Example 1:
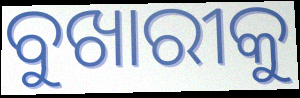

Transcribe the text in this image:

ବୁଖାରୀକୁ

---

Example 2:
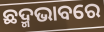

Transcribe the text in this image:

ଛଦ୍ମଭାବରେ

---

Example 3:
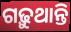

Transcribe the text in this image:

ଗଢ଼ୁଥାନ୍ତି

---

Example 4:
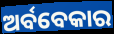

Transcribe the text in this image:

ଅର୍ବବେକାର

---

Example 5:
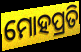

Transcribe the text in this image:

ମୋହପ୍ରତି